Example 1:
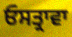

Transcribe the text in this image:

ਓਸਤ੍ਰਾਵਾ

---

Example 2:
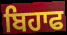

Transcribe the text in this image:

ਬਿਹਾਫ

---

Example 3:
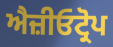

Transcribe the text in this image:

ਐਜ਼ੀਓਟ੍ਰੋਪ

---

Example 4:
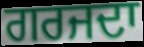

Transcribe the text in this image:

ਗਰਜਦਾ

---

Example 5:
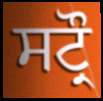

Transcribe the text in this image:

ਸਟ੍ਰੌ